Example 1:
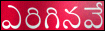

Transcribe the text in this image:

ఎరిగినవే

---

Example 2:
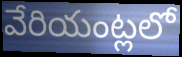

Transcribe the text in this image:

వేరియంట్లలో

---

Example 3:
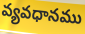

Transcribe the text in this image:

వ్యవధానము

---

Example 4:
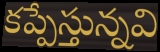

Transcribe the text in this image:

కప్పేస్తున్నవి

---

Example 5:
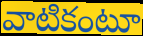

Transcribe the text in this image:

వాటికంటూ